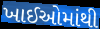
ખાઈઓમાંથી